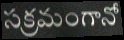
సక్రమంగానో